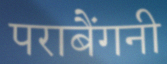
पराबैंगनी